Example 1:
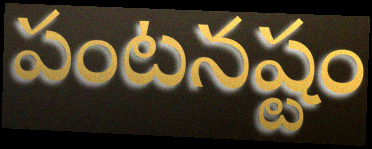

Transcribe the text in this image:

పంటనష్టం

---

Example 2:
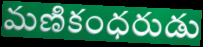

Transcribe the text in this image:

మణికంధరుడు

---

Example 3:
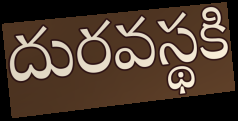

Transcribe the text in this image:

దురవస్థకి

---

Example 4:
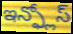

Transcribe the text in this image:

ఇన్ఫ్లోస్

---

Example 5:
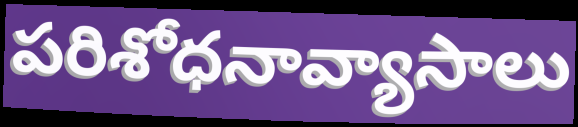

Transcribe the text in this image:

పరిశోధనావ్యాసాలు